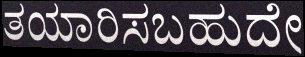
ತಯಾರಿಸಬಹುದೇ